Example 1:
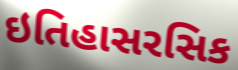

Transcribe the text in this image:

ઇતિહાસરસિક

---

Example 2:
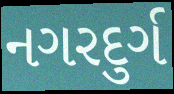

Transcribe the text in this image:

નગરદુર્ગ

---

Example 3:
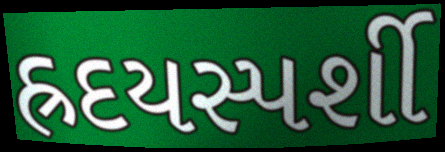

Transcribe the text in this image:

હ્રદયસ્પર્શી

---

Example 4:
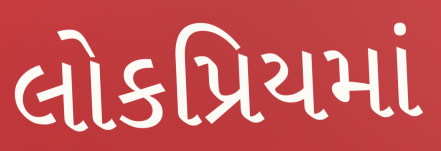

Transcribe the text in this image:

લોકપ્રિયમાં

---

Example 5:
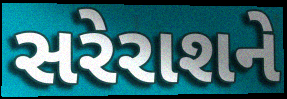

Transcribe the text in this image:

સરેરાશને